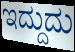
ಇದ್ದುದು